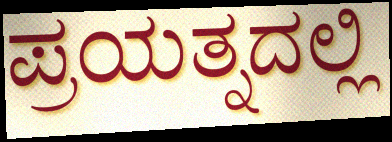
ಪ್ರಯತ್ನದಲ್ಲಿ